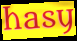
hasy